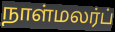
நாள்மலர்ப்